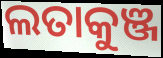
ଲତାକୁଞ୍ଜ